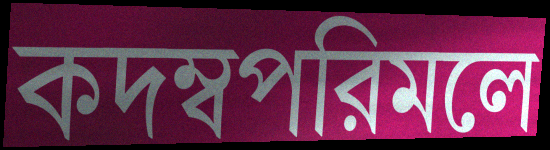
কদম্বপরিমলে